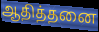
ஆதித்தனை